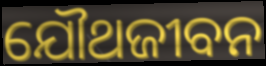
ଯୌଥଜୀବନ